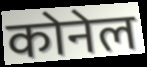
कोनेल